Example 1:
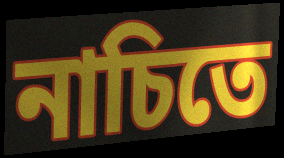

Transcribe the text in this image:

নাচিতে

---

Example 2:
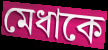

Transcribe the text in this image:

মেধাকে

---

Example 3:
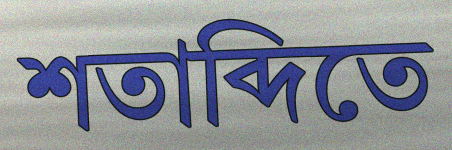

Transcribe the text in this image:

শতাব্দিতে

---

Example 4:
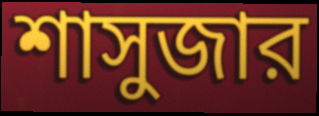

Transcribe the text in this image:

শাসুজার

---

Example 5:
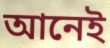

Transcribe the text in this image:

আনেই